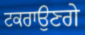
ਟਕਰਾਉਣਗੇ